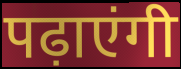
पढ़ाएंगी